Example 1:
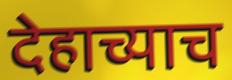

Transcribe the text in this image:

देहाच्याच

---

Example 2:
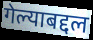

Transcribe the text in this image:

गेल्याबद्दल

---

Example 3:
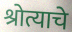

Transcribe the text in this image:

श्रोत्याचे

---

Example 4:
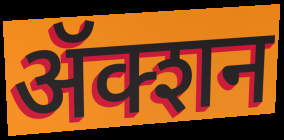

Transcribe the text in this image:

ॲक्शन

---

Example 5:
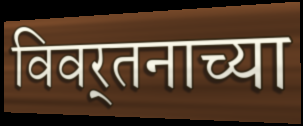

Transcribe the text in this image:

विवर्तनाच्या